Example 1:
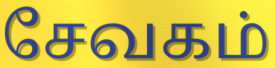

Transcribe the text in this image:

சேவகம்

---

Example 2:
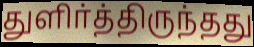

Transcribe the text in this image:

துளிர்த்திருந்தது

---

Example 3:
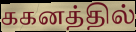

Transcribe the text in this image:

ககனத்தில்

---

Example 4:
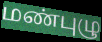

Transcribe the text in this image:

மண்புழு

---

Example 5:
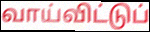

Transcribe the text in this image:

வாய்விட்டுப்